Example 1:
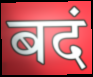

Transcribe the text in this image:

बदं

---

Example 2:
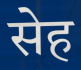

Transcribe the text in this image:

सेह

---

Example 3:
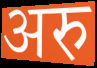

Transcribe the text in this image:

अरु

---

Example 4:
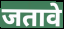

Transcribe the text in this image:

जतावे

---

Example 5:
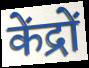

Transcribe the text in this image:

केंद्रों